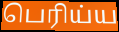
பெரிய்ய